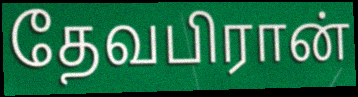
தேவபிரான்